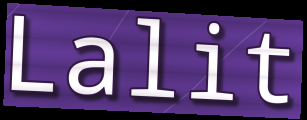
Lalit